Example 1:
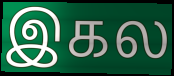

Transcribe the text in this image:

இகல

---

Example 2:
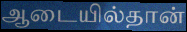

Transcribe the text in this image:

ஆடையில்தான்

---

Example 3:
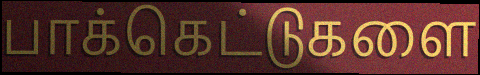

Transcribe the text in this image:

பாக்கெட்டுகளை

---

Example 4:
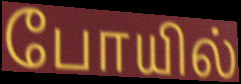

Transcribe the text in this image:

போயில்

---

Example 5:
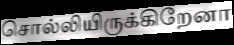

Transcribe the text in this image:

சொல்லியிருக்கிறேனா